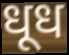
धूध